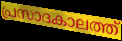
പ്രസാദകാലത്ത്